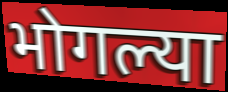
भोगल्या